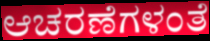
ಆಚರಣೆಗಳಂತೆ